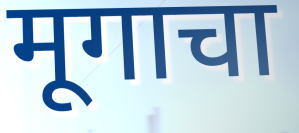
मूगाचा